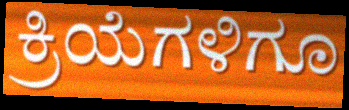
ಕ್ರಿಯೆಗಳಿಗೂ